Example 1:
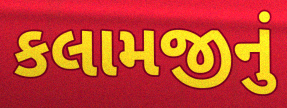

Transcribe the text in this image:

કલામજીનું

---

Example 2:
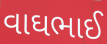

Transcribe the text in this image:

વાઘભાઈ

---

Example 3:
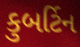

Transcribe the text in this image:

કુબર્ટિન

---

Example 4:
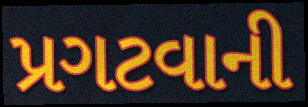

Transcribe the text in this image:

પ્રગટવાની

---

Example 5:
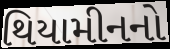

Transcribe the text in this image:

થિયામીનનો